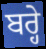
ਬਰ੍ਹੇ